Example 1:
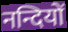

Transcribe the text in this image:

नन्दियों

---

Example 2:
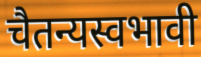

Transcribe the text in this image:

चैतन्यस्वभावी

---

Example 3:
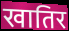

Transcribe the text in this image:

खातिर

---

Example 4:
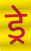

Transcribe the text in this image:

ड्रे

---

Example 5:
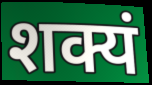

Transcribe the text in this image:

शक्यं